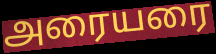
அரையரை